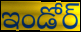
ఇండోర్